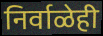
निर्वाळेही